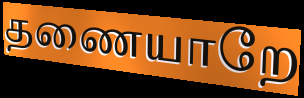
தணையாறே